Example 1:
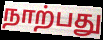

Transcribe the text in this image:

நாற்பது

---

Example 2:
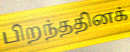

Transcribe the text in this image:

பிறந்ததினக்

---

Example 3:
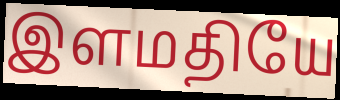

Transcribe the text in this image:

இளமதியே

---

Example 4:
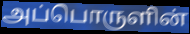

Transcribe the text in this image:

அப்பொருளின்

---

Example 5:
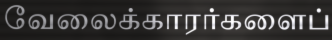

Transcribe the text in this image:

வேலைக்காரர்களைப்